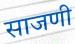
साजणी